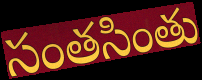
సంతసింతు